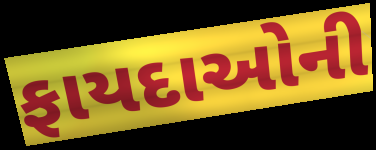
ફાયદાઓની